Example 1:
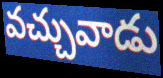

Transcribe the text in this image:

వచ్చువాడు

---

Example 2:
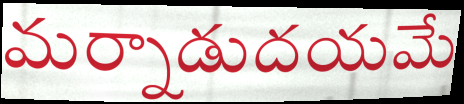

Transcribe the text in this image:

మర్నాడుదయమే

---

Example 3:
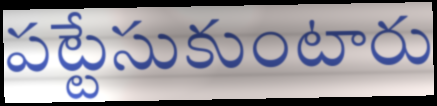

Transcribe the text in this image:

పట్టేసుకుంటారు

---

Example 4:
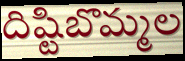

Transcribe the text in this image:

దిష్టిబొమ్మల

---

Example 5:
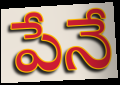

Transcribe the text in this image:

పేనే